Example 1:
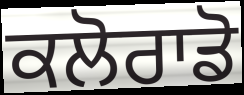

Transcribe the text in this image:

ਕਲੋਰਾਡੋ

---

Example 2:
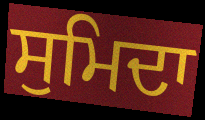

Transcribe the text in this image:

ਸੁਮਿਦਾ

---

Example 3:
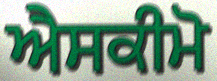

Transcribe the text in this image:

ਐਸਕੀਮੋ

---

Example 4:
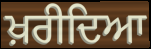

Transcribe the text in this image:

ਖ਼ਰੀਦਿਆ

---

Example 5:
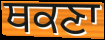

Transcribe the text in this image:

ਥਕਣਾ